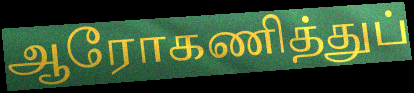
ஆரோகணித்துப்